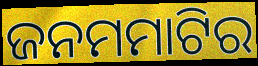
ଜନମମାଟିର